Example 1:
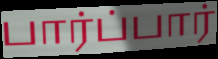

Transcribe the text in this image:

பார்ப்பார்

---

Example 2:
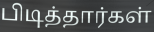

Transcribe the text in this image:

பிடித்தார்கள்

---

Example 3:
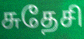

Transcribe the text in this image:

சுதேசி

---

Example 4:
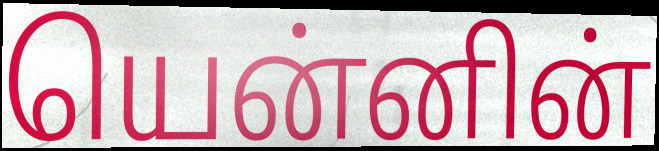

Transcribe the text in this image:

யென்னின்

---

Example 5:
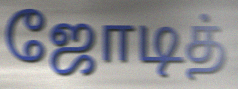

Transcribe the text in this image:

ஜோடித்